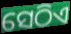
ସେଠିଏ